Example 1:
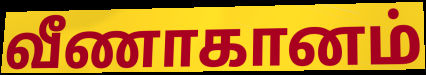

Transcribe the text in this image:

வீணாகானம்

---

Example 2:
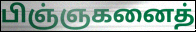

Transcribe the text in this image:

பிஞ்ஞகனைத்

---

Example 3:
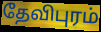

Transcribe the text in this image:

தேவிபுரம்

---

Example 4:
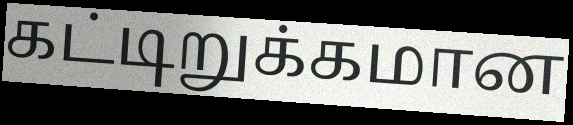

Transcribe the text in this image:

கட்டிறுக்கமான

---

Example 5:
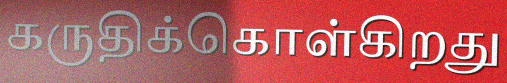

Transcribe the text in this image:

கருதிக்கொள்கிறது